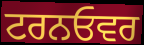
ਟਰਨਓਵਰ